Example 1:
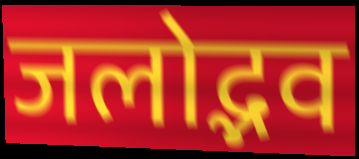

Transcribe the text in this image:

जलोद्भव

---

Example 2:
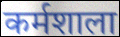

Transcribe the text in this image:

कर्मशाला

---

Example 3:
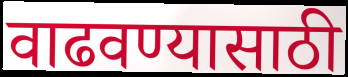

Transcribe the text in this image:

वाढवण्यासाठी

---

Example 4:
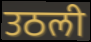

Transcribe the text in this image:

उठली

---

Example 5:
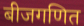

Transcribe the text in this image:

बीजगणित